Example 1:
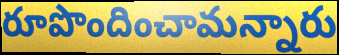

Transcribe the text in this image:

రూపొందించామన్నారు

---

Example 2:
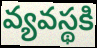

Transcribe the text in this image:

వ్యవస్థకి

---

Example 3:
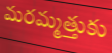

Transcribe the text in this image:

మరమ్మత్తుకు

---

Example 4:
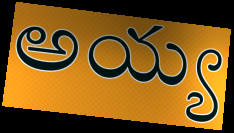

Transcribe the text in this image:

అయ్య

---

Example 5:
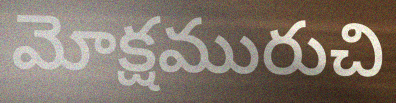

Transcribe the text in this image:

మోక్షమురుచి